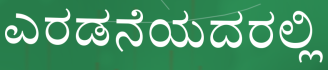
ಎರಡನೆಯದರಲ್ಲಿ